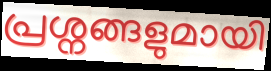
പ്രശ്നങ്ങളുമായി